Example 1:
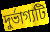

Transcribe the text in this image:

দুর্ভাগ্যটি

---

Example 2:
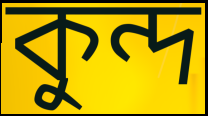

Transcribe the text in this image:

কুন্দ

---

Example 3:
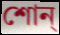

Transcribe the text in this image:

শোন্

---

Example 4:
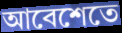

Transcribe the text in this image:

আবেশেতে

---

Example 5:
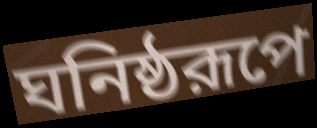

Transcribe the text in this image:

ঘনিষ্ঠরূপে